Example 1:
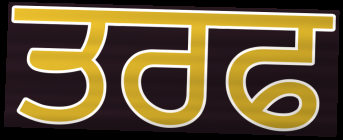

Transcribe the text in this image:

ਤਰਫ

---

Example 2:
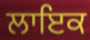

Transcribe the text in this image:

ਲਾਇਕ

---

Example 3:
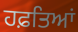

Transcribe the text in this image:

ਹਫ਼ਤਿਆਂ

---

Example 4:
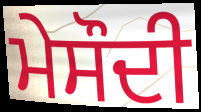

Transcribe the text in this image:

ਮੇਸੌਦੀ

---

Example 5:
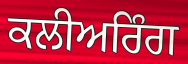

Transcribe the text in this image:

ਕਲੀਅਰਿੰਗ